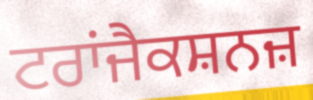
ਟਰਾਂਜੈਕਸ਼ਨਜ਼